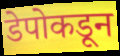
डेपोकडून